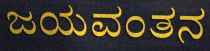
ಜಯವಂತನ